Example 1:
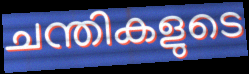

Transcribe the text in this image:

ചന്തികളുടെ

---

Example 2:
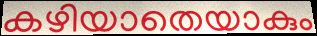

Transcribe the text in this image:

കഴിയാതെയാകും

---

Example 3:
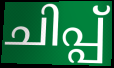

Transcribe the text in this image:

ചിപ്പ്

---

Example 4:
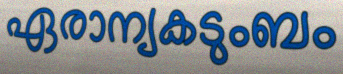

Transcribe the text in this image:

ഏരാന്യകടുംബം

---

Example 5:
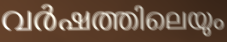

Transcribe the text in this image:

വർഷത്തിലെയും